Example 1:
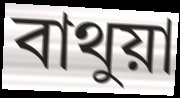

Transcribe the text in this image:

বাথুয়া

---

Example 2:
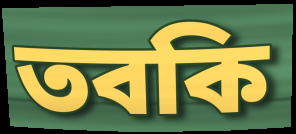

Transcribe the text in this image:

তবকি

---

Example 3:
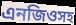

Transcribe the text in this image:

এনজিওসহ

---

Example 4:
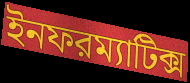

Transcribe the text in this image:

ইনফরম্যাটিক্স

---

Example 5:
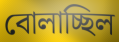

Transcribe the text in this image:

বোলাচ্ছিল